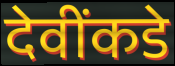
देवींकडे